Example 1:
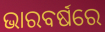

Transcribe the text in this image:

ଭାରବର୍ଷରେ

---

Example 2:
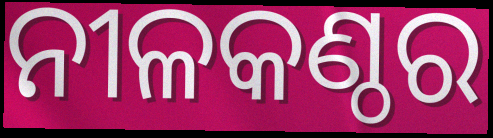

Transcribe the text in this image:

ନୀଳକଣ୍ଠର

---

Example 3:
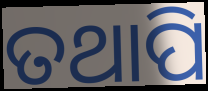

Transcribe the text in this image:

ତଥାପି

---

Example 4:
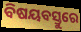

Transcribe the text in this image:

ବିଷୟବସ୍ତୁରେ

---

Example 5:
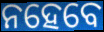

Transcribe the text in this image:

ନହେବେ